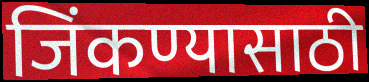
जिंकण्यासाठी